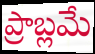
ప్రాబ్లమే